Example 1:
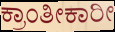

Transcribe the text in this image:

ಕ್ರಾಂತೀಕಾರೀ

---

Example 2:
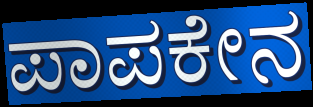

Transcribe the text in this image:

ಪಾಪಕೇನ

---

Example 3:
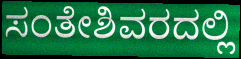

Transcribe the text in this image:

ಸಂತೇಶಿವರದಲ್ಲಿ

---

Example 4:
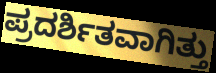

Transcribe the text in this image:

ಪ್ರದರ್ಶಿತವಾಗಿತ್ತು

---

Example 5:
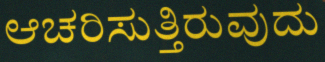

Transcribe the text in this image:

ಆಚರಿಸುತ್ತಿರುವುದು